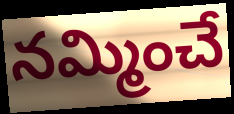
నమ్మించే